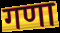
गणा